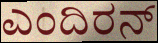
ಎಂದಿರನ್